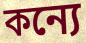
কন্যে